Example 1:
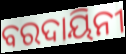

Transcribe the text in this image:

ବରଦାୟିନୀ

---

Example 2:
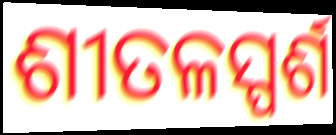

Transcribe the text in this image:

ଶୀତଳସ୍ପର୍ଶ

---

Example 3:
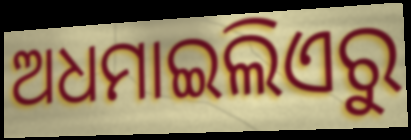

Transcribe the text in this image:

ଅଧମାଇଲିଏରୁ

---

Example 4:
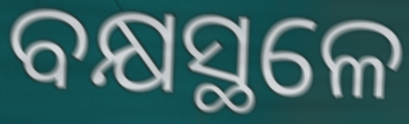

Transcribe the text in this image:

ବକ୍ଷସ୍ଥଳେ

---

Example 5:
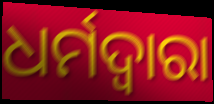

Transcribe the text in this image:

ଧର୍ମଦ୍ଵାରା